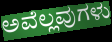
ಅವೆಲ್ಲವುಗಳು